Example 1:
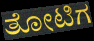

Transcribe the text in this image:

ತೋಟಿಗ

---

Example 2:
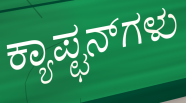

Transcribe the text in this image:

ಕ್ಯಾಪ್ಟನ್‌ಗಳು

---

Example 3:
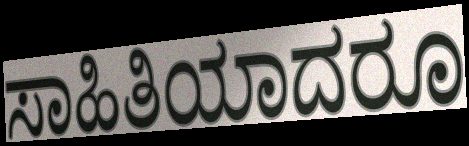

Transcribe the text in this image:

ಸಾಹಿತಿಯಾದರೂ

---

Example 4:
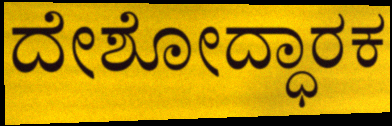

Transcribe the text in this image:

ದೇಶೋದ್ಧಾರಕ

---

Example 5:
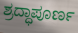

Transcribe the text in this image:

ಶ್ರದ್ಧಾಪೂರ್ಣ